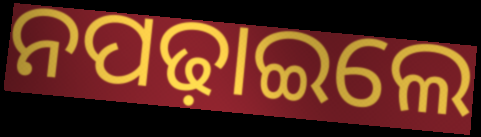
ନପଢ଼ାଇଲେ